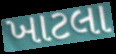
ખાટલા